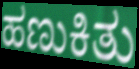
ಹಣುಕಿತು